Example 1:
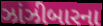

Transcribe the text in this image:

ઝાંઝીબારના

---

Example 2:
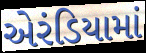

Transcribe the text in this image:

એરંડિયામાં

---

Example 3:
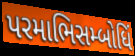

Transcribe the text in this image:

પરમાભિસમ્બોધિં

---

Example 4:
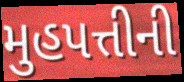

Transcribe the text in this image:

મુહપત્તીની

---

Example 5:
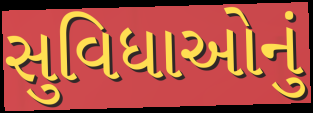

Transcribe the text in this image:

સુવિધાઓનું